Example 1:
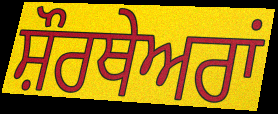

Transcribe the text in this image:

ਸ਼ੌਰਥੇਅਰਾਂ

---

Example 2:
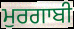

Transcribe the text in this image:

ਮੁਰਗਾਬੀ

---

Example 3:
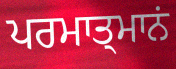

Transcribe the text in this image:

ਪਰਮਾਤ੍ਮਾਨਂ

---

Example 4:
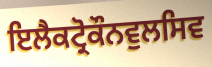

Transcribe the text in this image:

ਇਲੈਕਟ੍ਰੋਕੌਨਵੁਲਸਿਵ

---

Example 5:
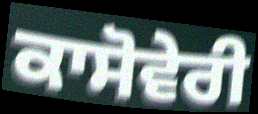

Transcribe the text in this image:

ਕਾਸੋਵੇਰੀ